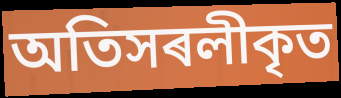
অতিসৰলীকৃত